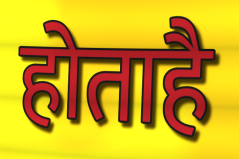
होताहै